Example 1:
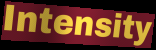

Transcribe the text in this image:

Intensity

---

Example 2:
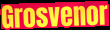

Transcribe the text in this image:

Grosvenor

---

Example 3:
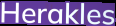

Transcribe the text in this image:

Herakles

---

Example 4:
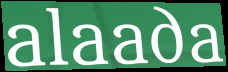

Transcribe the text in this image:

alaada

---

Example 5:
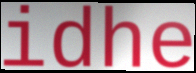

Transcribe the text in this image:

idhe